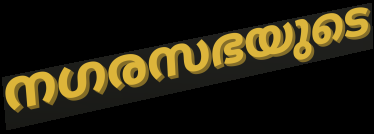
നഗരസഭയുടെ